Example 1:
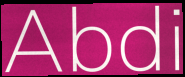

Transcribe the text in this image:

Abdi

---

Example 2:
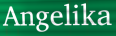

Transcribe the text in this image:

Angelika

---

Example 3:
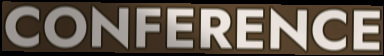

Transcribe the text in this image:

CONFERENCE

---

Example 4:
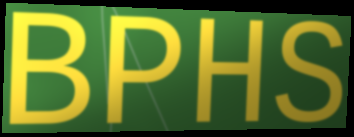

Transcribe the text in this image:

BPHS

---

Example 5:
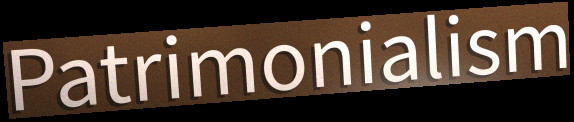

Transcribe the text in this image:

Patrimonialism